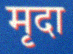
मृदा